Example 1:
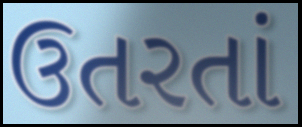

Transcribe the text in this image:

ઉતરતાં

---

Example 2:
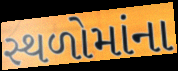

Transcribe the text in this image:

સ્થળોમાંના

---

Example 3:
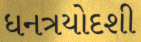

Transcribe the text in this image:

ધનત્રયોદશી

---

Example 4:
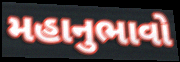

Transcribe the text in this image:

મહાનુભાવો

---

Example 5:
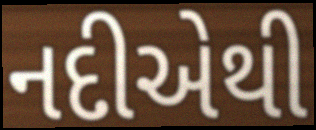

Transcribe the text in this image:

નદીએથી